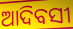
ଆଦିବସୀ